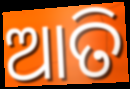
ଆତି